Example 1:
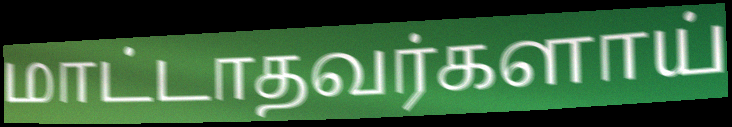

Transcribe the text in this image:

மாட்டாதவர்களாய்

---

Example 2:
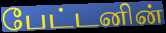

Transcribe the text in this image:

பேட்டனின்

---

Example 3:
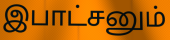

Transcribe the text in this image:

இபாட்சனும்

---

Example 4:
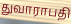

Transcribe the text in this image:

துவாராபதி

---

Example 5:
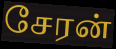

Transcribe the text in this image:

சேரன்